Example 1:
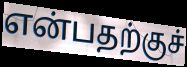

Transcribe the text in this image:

என்பதற்குச்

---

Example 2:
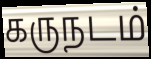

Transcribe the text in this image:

கருநடம்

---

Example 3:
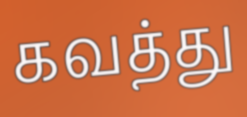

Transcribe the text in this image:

கவத்து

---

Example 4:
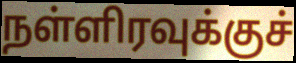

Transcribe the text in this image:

நள்ளிரவுக்குச்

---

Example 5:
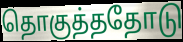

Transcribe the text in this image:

தொகுத்ததோடு